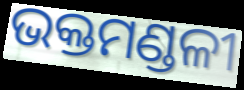
ଭକ୍ତମଣ୍ଡଳୀ